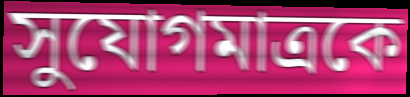
সুযোগমাত্রকে